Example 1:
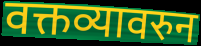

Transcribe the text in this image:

वक्तव्यावरुन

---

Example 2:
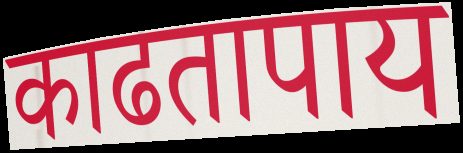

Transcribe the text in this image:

काढतापाय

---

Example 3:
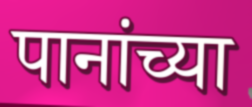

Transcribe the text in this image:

पानांच्या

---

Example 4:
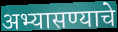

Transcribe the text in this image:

अभ्यासण्याचे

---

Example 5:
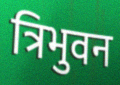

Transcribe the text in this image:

त्रिभुवन